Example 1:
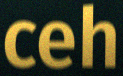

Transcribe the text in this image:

ceh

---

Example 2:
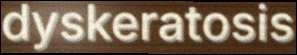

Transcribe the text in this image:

dyskeratosis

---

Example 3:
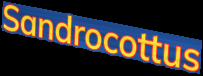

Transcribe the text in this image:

Sandrocottus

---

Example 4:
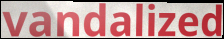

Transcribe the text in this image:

vandalized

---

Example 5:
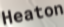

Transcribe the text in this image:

Heaton